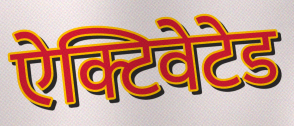
ऐक्टिवेटेड